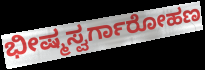
ಭೀಷ್ಮಸ್ವರ್ಗಾರೋಹಣ